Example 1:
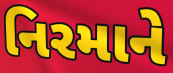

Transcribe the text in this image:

નિરમાને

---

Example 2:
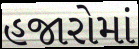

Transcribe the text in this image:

હજારોમાં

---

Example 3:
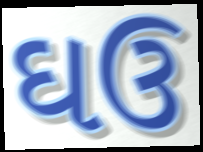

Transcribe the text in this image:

ઘઉ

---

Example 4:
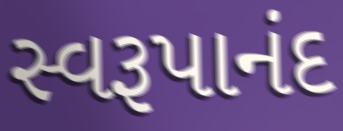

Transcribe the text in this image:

સ્વરૂપાનંદ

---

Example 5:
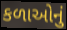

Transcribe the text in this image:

કળાઓનું